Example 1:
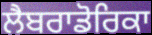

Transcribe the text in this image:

ਲੈਬਰਾਡੋਰਿਕਾ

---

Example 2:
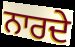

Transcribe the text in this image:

ਨਾਰਦੇ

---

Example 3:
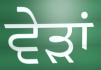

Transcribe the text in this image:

ਵੇੜਾਂ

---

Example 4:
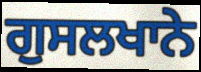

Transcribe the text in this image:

ਗੁਸਲਖਾਨੇ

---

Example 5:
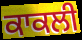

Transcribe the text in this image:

ਕਾਕਲੀ